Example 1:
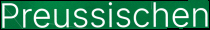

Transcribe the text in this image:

Preussischen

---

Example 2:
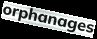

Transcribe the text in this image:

orphanages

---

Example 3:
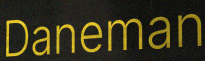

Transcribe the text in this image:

Daneman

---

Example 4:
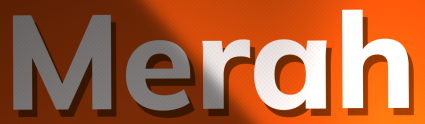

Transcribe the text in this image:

Merah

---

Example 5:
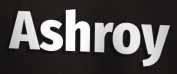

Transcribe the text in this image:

Ashroy